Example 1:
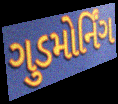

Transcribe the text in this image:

ગુડમોર્નિંગ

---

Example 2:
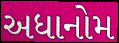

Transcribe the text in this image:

અધાનોમ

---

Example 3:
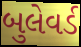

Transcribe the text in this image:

બુલેવર્ડ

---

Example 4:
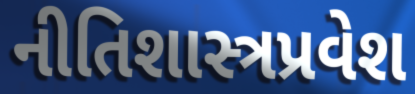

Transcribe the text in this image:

નીતિશાસ્ત્રપ્રવેશ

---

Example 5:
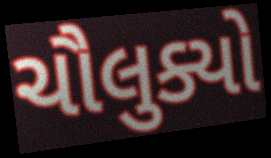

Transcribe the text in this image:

ચૌલુક્યો